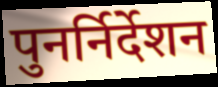
पुनर्निर्देशन